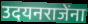
उदयनराजेंना